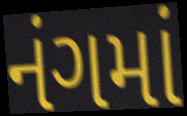
નંગમાં